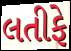
લતીફે